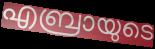
എബ്രായുടെ